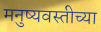
मनुष्यवस्तीच्या